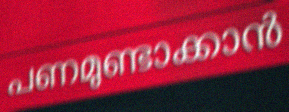
പണമുണ്ടാക്കാൻ